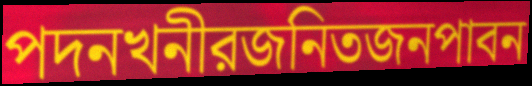
পদনখনীরজনিতজনপাবন